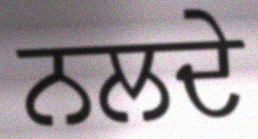
ਨਲਦੇ